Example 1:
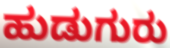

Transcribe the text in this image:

ಹುಡುಗುರು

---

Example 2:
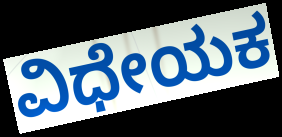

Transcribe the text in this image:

ವಿಧೇಯಕ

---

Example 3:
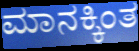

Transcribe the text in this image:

ಮಾನಕ್ಕಿಂತ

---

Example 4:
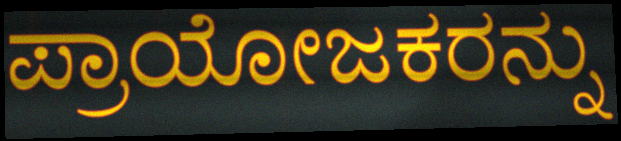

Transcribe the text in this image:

ಪ್ರಾಯೋಜಕರನ್ನು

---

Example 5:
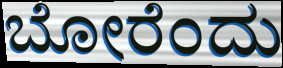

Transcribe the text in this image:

ಬೋರೆಂದು